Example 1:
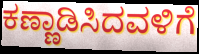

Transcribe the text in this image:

ಕಣ್ಣಾಡಿಸಿದವಳಿಗೆ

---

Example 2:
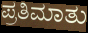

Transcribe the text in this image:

ಪ್ರತಿಮಾತು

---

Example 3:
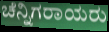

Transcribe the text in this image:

ಚೆನ್ನಿಗರಾಯರು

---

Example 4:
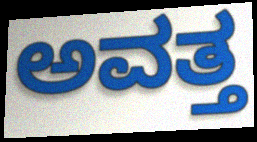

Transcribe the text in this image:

ಅವತ್ತ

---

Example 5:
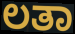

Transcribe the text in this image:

ಲತಾ